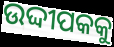
ଉଦ୍ଦୀପକକୁ